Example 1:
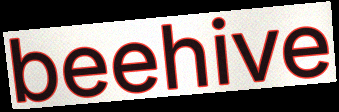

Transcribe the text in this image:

beehive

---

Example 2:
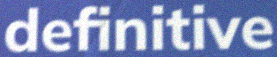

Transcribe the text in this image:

definitive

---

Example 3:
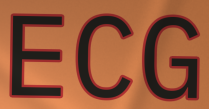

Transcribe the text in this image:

ECG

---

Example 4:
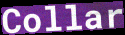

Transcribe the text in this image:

Collar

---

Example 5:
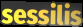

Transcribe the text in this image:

sessilis